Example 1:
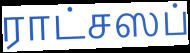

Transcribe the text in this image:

ராட்சஸப்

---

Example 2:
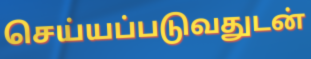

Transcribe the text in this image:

செய்யப்படுவதுடன்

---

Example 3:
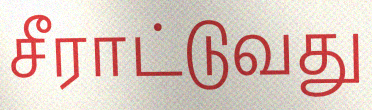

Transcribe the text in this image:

சீராட்டுவது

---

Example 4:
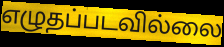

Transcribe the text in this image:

எழுதப்படவில்லை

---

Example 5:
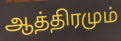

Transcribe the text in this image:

ஆத்திரமும்